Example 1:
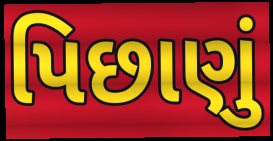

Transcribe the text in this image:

પિછાણું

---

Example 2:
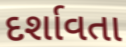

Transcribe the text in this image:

દર્શાવતા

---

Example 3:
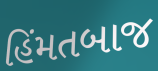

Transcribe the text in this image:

હિંમતબાજ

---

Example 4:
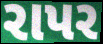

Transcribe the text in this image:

રાપર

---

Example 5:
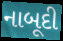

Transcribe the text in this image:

નાબૂદી